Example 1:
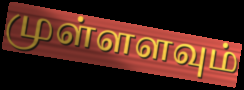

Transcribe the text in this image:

முள்ளளவும்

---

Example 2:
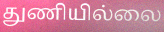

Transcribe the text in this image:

துணியில்லை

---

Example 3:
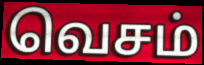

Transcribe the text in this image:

வெசம்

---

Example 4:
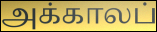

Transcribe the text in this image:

அக்காலப்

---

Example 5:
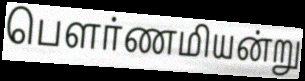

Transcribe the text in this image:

பெளர்ணமியன்று